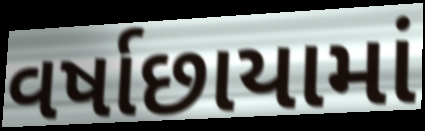
વર્ષાછાયામાં